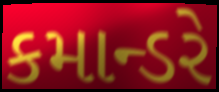
કમાન્ડરે